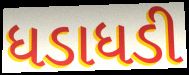
ધડાધડી